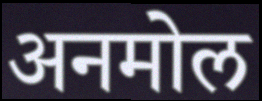
अनमोल